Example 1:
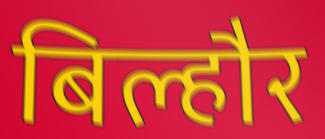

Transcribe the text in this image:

बिल्हौर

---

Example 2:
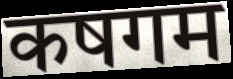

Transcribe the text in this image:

कषगम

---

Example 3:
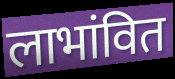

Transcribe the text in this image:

लाभांवित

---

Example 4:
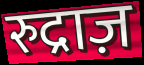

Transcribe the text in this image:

रुद्राज़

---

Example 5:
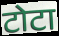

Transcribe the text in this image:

टोटा